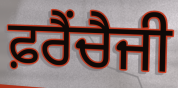
ਫ਼ਰੈਂਚੈਜੀ